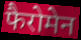
फैरोमेन